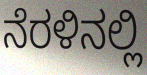
ನೆರಳಿನಲ್ಲಿ